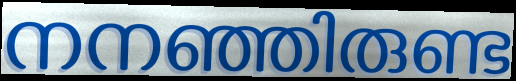
നനഞ്ഞിരുണ്ട